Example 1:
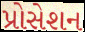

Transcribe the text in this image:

પ્રોસેશન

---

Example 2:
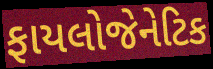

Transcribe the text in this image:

ફાયલોજેનેટિક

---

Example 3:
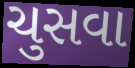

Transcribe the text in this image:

ચુસવા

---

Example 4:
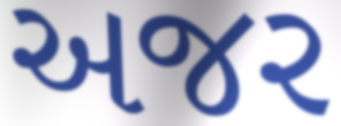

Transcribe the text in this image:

અજર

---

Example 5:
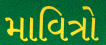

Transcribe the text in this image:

માવિત્રો